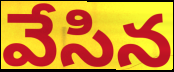
వేసిన